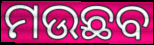
ମଉଛବ